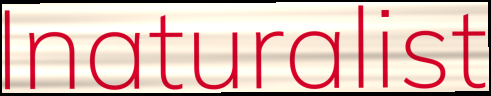
Inaturalist